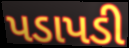
પડાપડી